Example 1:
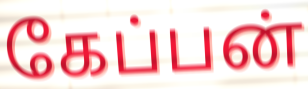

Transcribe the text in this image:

கேப்பன்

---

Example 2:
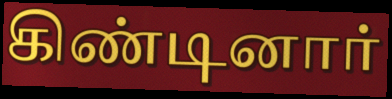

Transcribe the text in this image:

கிண்டினார்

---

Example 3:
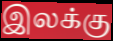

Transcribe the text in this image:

இலக்கு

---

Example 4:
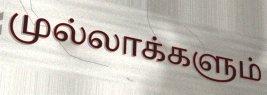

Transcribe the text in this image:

முல்லாக்களும்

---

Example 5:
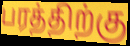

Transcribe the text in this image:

பரத்திற்கு